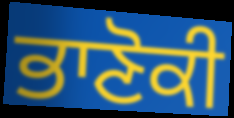
ਭਾਣੋਕੀ